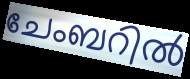
ചേംബറിൽ